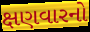
ક્ષણવારનો